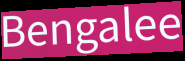
Bengalee